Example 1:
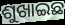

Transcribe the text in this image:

ଶୁଖାଇଛ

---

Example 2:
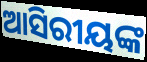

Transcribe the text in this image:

ଆସିରୀୟଙ୍କ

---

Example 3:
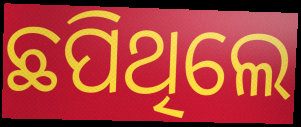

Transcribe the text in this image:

ଛପିଥିଲେ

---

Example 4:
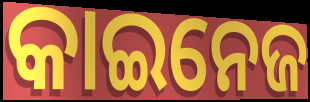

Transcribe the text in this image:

କାଇନେଜ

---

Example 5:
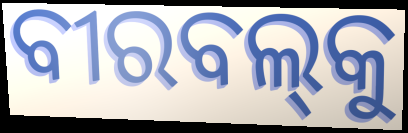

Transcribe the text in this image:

ବୀରବଲ୍‌କୁ